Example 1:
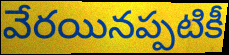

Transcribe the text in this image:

వేరయినప్పటికీ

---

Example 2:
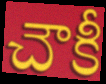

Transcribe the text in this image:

చౌకీ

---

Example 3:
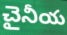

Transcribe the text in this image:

చైనీయ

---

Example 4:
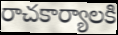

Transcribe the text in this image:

రాచకార్యాలకి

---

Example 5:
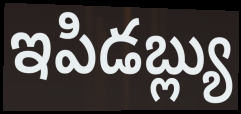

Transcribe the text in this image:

ఇపిడబ్ల్యు